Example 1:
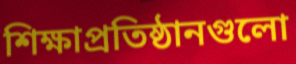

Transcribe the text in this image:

শিক্ষাপ্রতিষ্ঠানগুলো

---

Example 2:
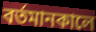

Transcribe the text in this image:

বর্তমানকালে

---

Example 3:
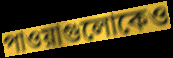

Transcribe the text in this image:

পাওয়াগুলোকেও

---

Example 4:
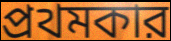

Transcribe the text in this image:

প্রথমকার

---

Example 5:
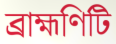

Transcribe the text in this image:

ব্রাহ্মণিটি